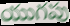
యుగపు